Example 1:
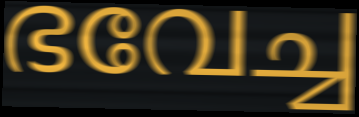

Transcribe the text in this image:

ഭവേച്ച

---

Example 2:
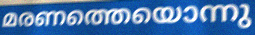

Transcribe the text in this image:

മരണത്തെയൊന്നു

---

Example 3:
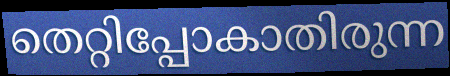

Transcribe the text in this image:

തെറ്റിപ്പോകാതിരുന്ന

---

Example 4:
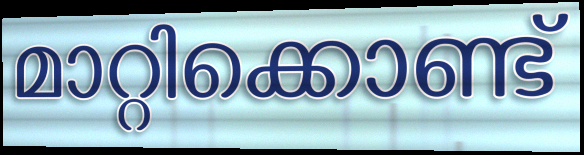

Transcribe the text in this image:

മാറ്റിക്കൊണ്ട്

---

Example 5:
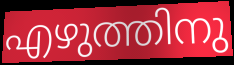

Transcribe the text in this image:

എഴുത്തിനു